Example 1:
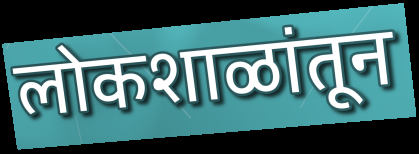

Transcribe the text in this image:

लोकशाळांतून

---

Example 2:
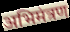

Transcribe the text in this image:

अभिमंत्रण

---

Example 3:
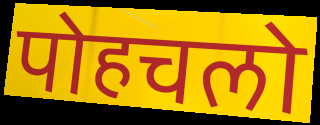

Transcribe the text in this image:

पोहचलो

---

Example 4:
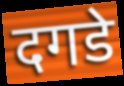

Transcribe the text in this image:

दगडे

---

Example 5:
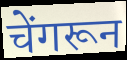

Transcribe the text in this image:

चेंगरून